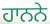
ਹਾਨਨੇ